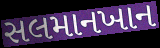
સલમાનખાન